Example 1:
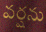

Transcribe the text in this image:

వర్షను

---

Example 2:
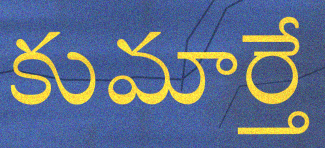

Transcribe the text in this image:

కుమార్తే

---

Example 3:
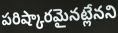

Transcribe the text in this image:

పరిష్కారమైనట్లేనని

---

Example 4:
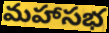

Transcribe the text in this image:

మహాసభ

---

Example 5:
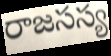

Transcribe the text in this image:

రాజసస్య